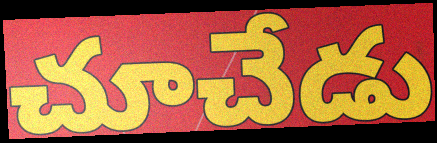
చూచేడు